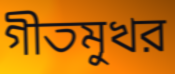
গীতমুখর